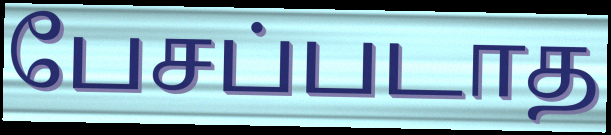
பேசப்படாத